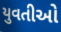
યુવતીઓ